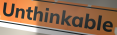
Unthinkable